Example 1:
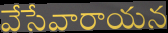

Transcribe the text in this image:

వేసేవారాయన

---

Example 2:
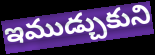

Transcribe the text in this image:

ఇముడ్చుకుని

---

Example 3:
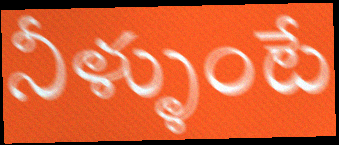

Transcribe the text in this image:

నీళ్ళుంటే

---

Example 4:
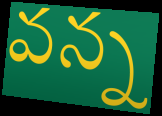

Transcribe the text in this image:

వన్న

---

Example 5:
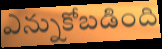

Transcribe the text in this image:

ఎన్నుకోబడింది